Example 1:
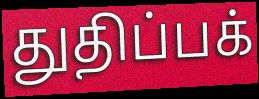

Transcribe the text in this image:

துதிப்பக்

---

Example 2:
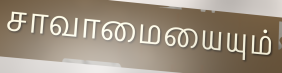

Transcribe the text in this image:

சாவாமையையும்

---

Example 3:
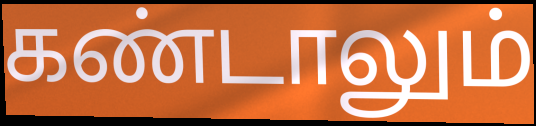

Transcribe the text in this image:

கண்டாலும்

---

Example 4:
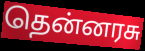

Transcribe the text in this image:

தென்னரசு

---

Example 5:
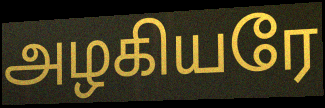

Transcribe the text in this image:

அழகியரே